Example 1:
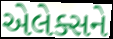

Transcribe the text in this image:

એલેક્સને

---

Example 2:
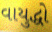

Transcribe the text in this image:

વાયુદ્ધો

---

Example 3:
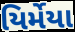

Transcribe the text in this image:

યિર્મેયા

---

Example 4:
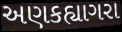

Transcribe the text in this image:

અણકહ્યાગરા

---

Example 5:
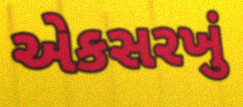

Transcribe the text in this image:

એકસરખું